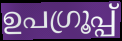
ഉപഗ്രൂപ്പ്